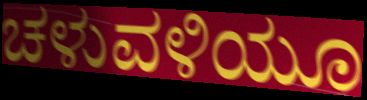
ಚಳುವಳಿಯೂ